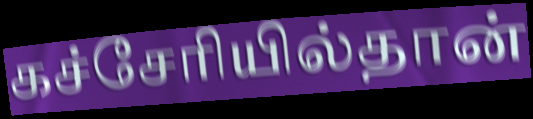
கச்சேரியில்தான்